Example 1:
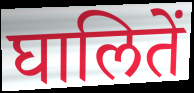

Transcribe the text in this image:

घालितें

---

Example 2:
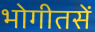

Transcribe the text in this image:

भोगीतसें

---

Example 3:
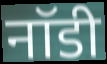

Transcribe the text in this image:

नॉडी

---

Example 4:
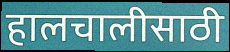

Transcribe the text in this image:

हालचालीसाठी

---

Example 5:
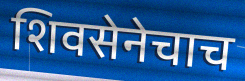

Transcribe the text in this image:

शिवसेनेचाच